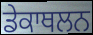
ਡੇਕਾਥਲਨ